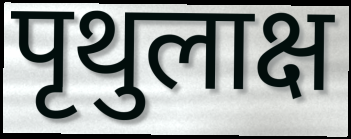
पृथुलाक्ष